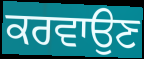
ਕਰਵਾਉਣ